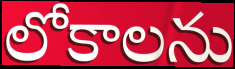
లోకాలను